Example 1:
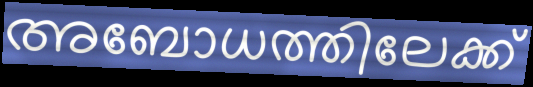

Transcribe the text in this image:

അബോധത്തിലേക്ക്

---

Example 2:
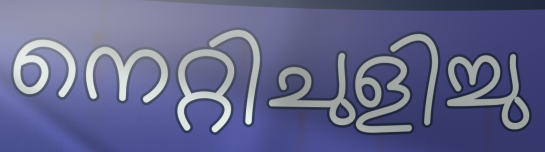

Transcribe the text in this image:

നെറ്റിചുളിച്ചു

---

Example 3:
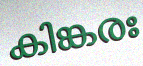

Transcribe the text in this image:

കിങ്കരഃ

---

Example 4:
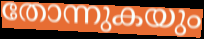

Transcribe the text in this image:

തോന്നുകയും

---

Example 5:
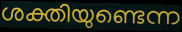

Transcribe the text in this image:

ശക്തിയുണ്ടെന്ന